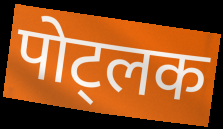
पोट्लक